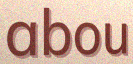
abou